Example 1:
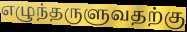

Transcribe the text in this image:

எழுந்தருளுவதற்கு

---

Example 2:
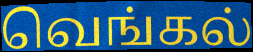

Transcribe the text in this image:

வெங்கல்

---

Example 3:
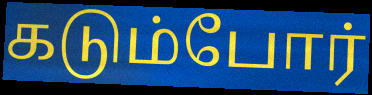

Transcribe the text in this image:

கடும்போர்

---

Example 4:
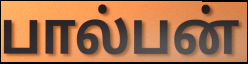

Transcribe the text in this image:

பால்பன்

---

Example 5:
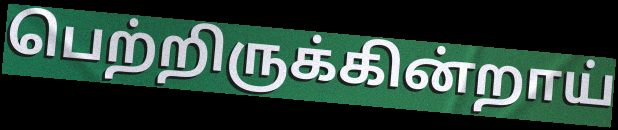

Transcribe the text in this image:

பெற்றிருக்கின்றாய்